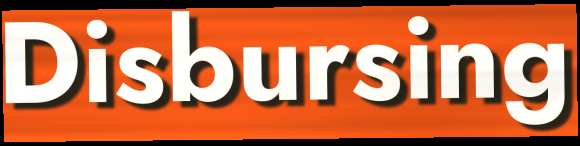
Disbursing